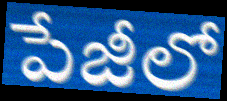
పేజీలో